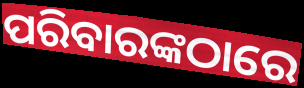
ପରିବାରଙ୍କଠାରେ